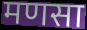
मणसा